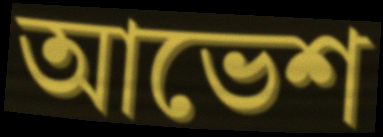
আভেশ